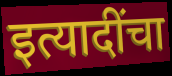
इत्यादींचा